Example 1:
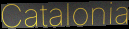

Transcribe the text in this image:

Catalonia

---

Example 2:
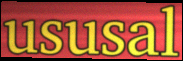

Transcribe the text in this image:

ususal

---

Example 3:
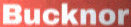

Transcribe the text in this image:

Bucknor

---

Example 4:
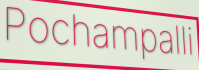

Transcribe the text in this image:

Pochampalli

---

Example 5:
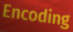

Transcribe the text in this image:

Encoding